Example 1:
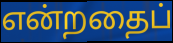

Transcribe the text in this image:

என்றதைப்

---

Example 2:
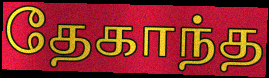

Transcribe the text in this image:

தேகாந்த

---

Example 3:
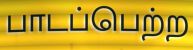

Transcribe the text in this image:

பாடப்பெற்ற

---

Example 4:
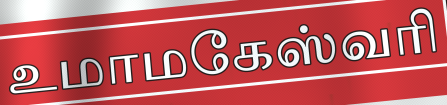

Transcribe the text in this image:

உமாமகேஸ்வரி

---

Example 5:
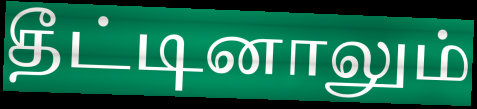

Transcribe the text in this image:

தீட்டினாலும்